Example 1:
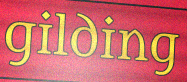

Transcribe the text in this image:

gilding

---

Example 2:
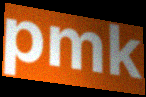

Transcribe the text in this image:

pmk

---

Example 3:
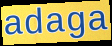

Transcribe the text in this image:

adaga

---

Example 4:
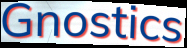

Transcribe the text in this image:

Gnostics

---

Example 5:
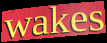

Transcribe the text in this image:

wakes